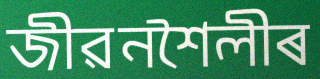
জীৱনশৈলীৰ